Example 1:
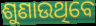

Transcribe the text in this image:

ଶୁଣାଉଥିବେ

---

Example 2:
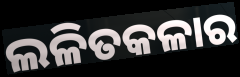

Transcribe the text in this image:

ଲଳିତକଳାର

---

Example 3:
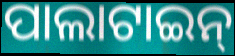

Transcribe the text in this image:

ପାଲାଟାଇନ୍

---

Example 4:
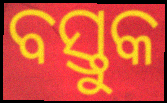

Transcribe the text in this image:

ବସ୍ତୁକ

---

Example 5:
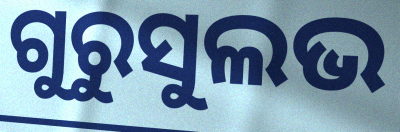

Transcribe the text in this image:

ଗୁରୁସୁଲଭ